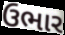
ઉભાર